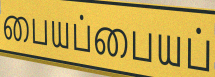
பையப்பையப்